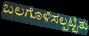
ಬಲಗೊಳಿಸಲ್ಪಟ್ಟಿತು